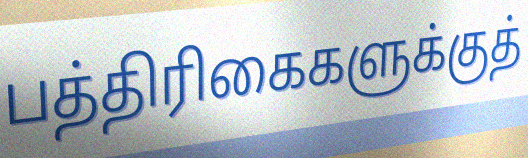
பத்திரிகைகளுக்குத்